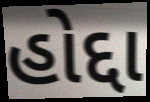
હોદ્દા